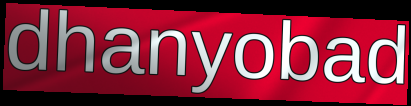
dhanyobad